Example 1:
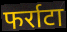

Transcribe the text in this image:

फर्राटा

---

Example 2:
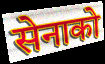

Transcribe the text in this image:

सेनाको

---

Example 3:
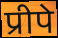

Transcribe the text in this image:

प्रीपे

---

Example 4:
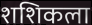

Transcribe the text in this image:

शशिकला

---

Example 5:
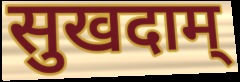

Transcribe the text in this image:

सुखदाम्